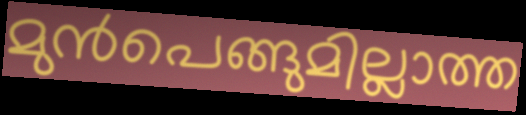
മുൻപെങ്ങുമില്ലാത്ത